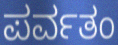
ಪರ್ವತಂ